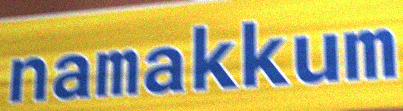
namakkum